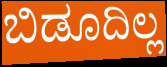
ಬಿಡೂದಿಲ್ಲ